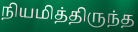
நியமித்திருந்த